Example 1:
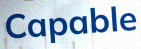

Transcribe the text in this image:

Capable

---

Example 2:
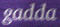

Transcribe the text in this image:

gadda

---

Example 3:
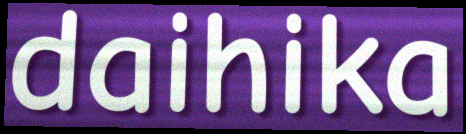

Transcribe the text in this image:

daihika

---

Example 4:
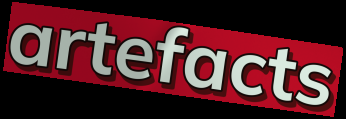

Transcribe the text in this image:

artefacts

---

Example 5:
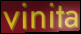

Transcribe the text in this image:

vinita